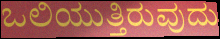
ಒಲಿಯುತ್ತಿರುವುದು